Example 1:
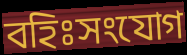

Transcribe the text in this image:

বহিঃসংযোগ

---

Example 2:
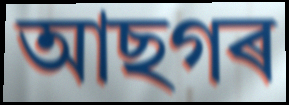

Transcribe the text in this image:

আছগৰ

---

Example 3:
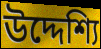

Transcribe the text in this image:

উদ্দেশ্যি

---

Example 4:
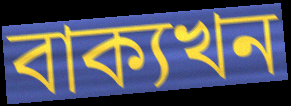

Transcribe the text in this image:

বাক্যখন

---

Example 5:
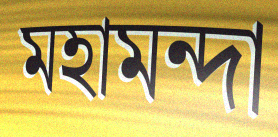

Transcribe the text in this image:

মহামন্দা